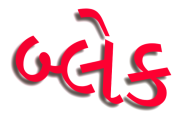
બ્લેક